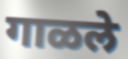
गाळले